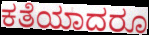
ಕತೆಯಾದರೂ